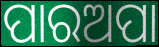
ପାରଅପା